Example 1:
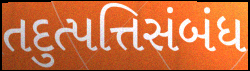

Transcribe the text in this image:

તદુત્પત્તિસંબંધ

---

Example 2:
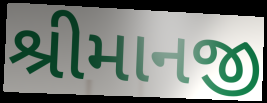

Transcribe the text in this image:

શ્રીમાનજી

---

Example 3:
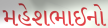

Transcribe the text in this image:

મહેશભાઈનો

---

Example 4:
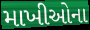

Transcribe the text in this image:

માખીઓના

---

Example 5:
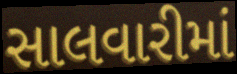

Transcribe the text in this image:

સાલવારીમાં